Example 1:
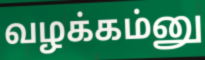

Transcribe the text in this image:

வழக்கம்னு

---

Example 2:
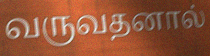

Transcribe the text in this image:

வருவதனால்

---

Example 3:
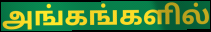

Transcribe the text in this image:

அங்கங்களில்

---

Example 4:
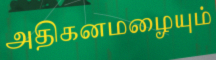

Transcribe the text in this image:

அதிகனமழையும்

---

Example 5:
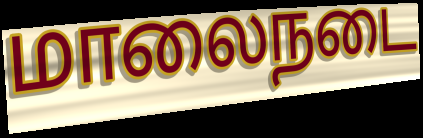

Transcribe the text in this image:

மாலைநடை